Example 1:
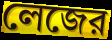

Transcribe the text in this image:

লেজের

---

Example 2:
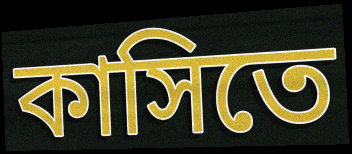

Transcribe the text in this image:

কাসিতে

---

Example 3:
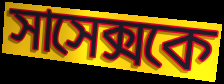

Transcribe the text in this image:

সাসেক্সকে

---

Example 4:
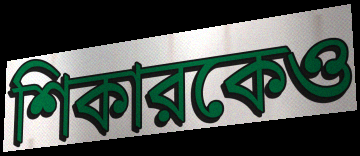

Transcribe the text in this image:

শিকারকেও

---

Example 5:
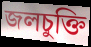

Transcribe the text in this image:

জলচুক্তি